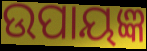
ଉପାୟଜ୍ଞ